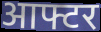
आफ्टर